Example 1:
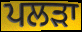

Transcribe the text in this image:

ਪਲੜਾ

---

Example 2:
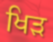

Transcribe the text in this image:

ਖਿੜ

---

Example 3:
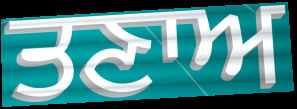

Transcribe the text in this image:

ਤਣਾਅ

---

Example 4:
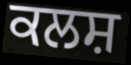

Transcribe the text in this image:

ਕਲਸ਼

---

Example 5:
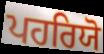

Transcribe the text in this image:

ਪਹਰਿਯੋ